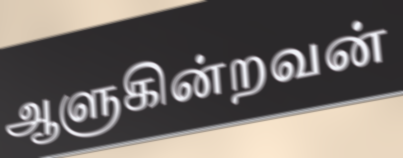
ஆளுகின்றவன்